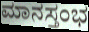
ಮಾನಸ್ತಂಭ